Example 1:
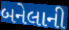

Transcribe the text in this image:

બનેલાની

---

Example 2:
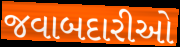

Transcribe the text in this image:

જવાબદારીઓ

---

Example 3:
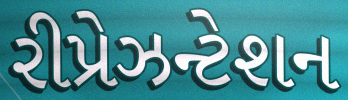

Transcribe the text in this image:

રીપ્રેઝન્ટેશન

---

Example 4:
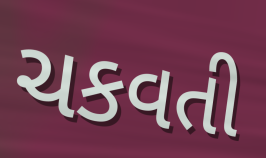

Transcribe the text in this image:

ચકવતી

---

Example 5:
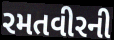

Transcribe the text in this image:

રમતવીરની